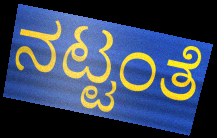
ನಟ್ಟಂತೆ